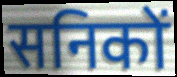
सनिकों